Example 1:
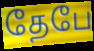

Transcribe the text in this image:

தேபே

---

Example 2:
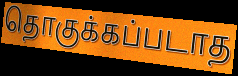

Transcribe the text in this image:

தொகுக்கப்படாத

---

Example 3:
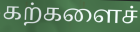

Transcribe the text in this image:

கற்களைச்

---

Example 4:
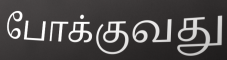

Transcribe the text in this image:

போக்குவது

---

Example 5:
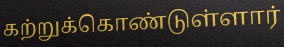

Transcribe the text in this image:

கற்றுக்கொண்டுள்ளார்